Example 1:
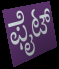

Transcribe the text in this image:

ಫೈಟ್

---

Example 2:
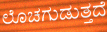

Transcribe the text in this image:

ಲೊಚಗುಡುತ್ತದೆ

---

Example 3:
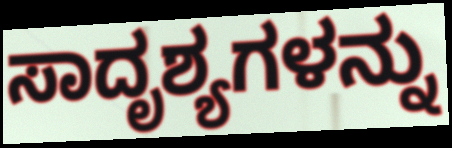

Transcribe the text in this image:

ಸಾದೃಶ್ಯಗಳನ್ನು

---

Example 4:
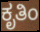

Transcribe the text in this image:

ಕೃತಿಂ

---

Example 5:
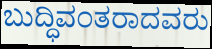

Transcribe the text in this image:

ಬುದ್ಧಿವಂತರಾದವರು